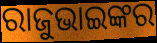
ରାଜୁଭାଇଙ୍କର